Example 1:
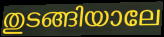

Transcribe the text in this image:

തുടങ്ങിയാലേ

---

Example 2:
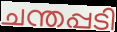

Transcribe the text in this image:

ചന്തപ്പടി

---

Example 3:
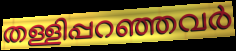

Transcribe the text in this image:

തള്ളിപ്പറഞ്ഞവർ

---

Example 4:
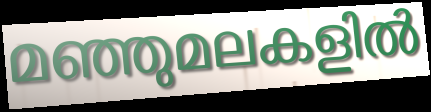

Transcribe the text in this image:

മഞ്ഞുമലകളിൽ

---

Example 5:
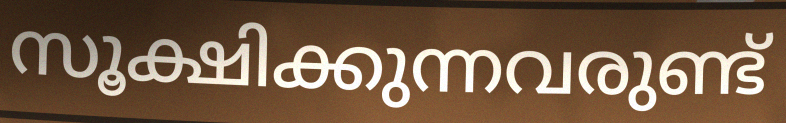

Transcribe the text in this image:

സൂക്ഷിക്കുന്നവരുണ്ട്